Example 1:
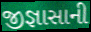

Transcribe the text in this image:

જીજ્ઞાસાની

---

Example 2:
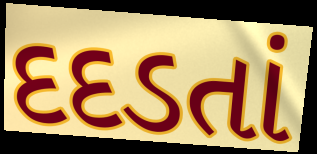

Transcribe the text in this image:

દદડતાં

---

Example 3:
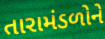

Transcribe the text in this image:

તારામંડળોને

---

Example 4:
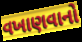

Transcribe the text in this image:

વખાણવાનો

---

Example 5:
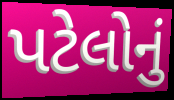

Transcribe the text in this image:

પટેલોનું